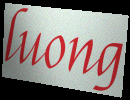
luong